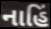
નાહિં